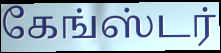
கேங்ஸ்டர்